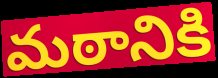
మఠానికి